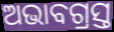
ଅଭାବଗ୍ରସ୍ତ